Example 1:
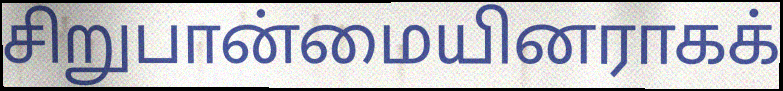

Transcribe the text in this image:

சிறுபான்மையினராகக்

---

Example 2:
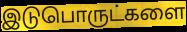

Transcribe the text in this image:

இடுபொருட்களை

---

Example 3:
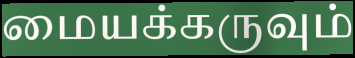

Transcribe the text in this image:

மையக்கருவும்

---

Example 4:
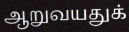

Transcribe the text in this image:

ஆறுவயதுக்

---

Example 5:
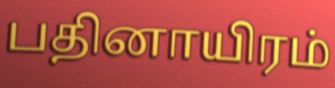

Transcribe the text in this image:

பதினாயிரம்